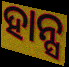
ହାନ୍ସ